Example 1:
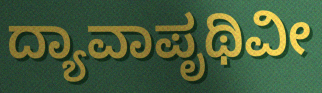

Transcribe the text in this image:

ದ್ಯಾವಾಪೃಥಿವೀ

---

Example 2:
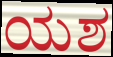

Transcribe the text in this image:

ಯಶ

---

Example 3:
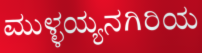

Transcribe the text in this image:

ಮುಳ್ಳಯ್ಯನಗಿರಿಯ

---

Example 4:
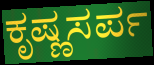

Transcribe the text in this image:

ಕೃಷ್ಣಸರ್ಪ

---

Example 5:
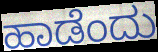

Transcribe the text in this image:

ಹಾಡೆಂದು